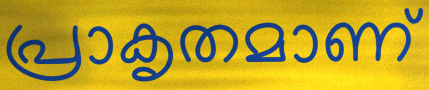
പ്രാകൃതമാണ്